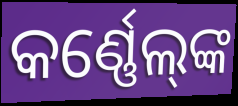
କର୍ଣ୍ଣେଲ୍‌ଙ୍କ